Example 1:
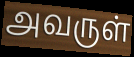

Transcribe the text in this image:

அவருள்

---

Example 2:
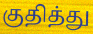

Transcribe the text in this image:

குதித்து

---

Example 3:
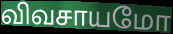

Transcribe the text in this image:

விவசாயமோ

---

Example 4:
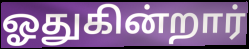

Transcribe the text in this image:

ஓதுகின்றார்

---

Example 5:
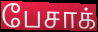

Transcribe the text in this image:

பேசாக்